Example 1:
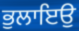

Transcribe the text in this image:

ਭੁਲਾਇਉ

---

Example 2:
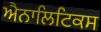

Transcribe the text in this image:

ਐਨਾਲਿਟਿਕਸ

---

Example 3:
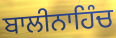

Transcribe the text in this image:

ਬਾਲੀਨਾਹਿੰਚ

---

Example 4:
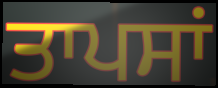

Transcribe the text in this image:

ਤਾਪਸਾਂ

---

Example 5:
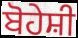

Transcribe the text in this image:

ਬੋਹੇਸ਼ੀ